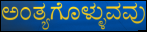
ಅಂತ್ಯಗೊಳ್ಳುವವು